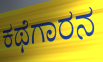
ಕಥೆಗಾರನ